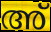
അ്